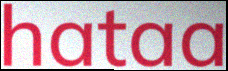
hataa